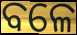
ବଳେ